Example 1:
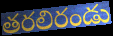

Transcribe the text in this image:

తరలిరండు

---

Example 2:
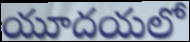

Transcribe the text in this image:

యూదయలో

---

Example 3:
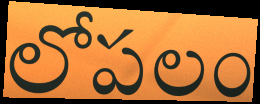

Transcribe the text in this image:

లోపలం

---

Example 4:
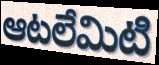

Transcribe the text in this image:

ఆటలేమిటి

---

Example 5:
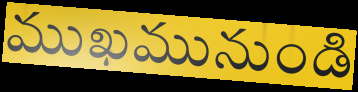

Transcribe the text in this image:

ముఖమునుండి